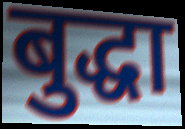
बुद्धा